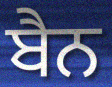
ਬੈਨ